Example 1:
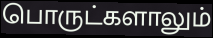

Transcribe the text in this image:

பொருட்களாலும்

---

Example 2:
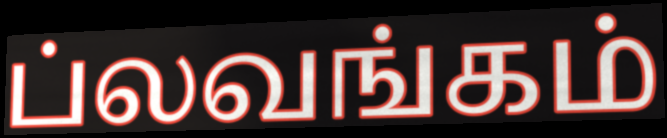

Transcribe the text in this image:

ப்லவங்கம்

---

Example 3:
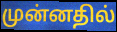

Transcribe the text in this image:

முன்னதில்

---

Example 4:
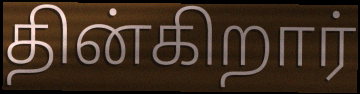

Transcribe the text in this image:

தின்கிறார்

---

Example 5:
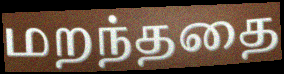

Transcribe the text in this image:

மறந்ததை